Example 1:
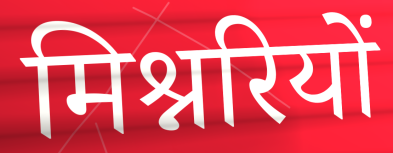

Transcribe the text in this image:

मिश्नरियों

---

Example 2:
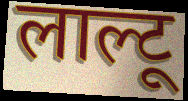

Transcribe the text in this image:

लाल्टू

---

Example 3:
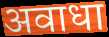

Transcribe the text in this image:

अवाधा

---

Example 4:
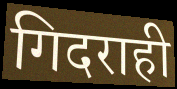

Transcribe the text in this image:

गिदराही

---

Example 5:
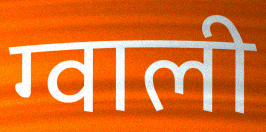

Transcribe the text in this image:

ग्वाली